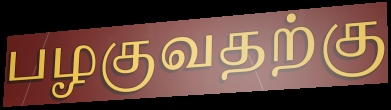
பழகுவதற்கு